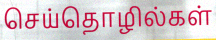
செய்தொழில்கள்